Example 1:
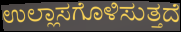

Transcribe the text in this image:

ಉಲ್ಲಾಸಗೊಳಿಸುತ್ತದೆ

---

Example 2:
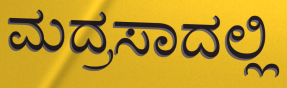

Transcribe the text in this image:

ಮದ್ರಸಾದಲ್ಲಿ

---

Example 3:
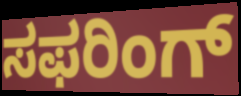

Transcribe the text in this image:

ಸಫರಿಂಗ್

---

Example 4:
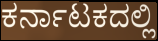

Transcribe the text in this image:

ಕರ್ನಾಟಕದಲ್ಲಿ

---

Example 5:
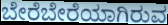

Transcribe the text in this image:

ಬೇರೆಬೇರೆಯಾಗಿರುವ